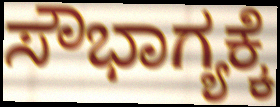
ಸೌಭಾಗ್ಯಕ್ಕೆ